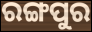
ରଙ୍ଗପୁର